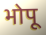
भोपू